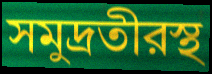
সমুদ্রতীরস্থ